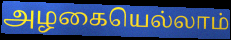
அழகையெல்லாம்